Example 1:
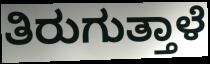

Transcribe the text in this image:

ತಿರುಗುತ್ತಾಳೆ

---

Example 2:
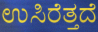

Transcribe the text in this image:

ಉಸಿರೆತ್ತದೆ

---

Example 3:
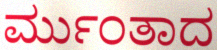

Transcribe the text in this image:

ರ್ಮುಂತಾದ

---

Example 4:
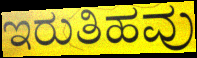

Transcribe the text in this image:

ಇರುತಿಹವು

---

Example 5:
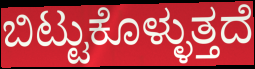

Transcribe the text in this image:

ಬಿಟ್ಟುಕೊಳ್ಳುತ್ತದೆ